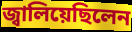
জ্বালিয়েছিলেন